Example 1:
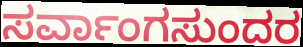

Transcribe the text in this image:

ಸರ್ವಾಂಗಸುಂದರ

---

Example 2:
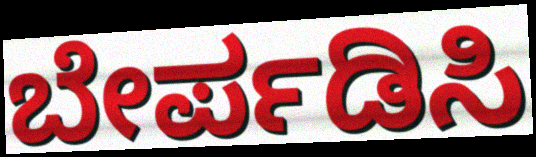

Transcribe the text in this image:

ಬೇರ್ಪಡಿಸಿ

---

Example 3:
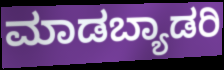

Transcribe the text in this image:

ಮಾಡಬ್ಯಾಡರಿ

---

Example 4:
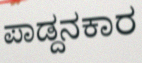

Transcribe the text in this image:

ಪಾಡ್ದನಕಾರ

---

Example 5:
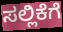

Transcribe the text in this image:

ಸಲ್ಲಿಕೆಗೆ